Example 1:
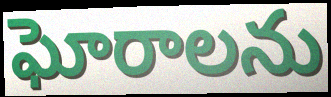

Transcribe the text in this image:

ఘోరాలను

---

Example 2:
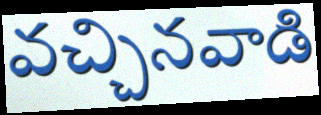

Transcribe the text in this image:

వచ్చినవాడి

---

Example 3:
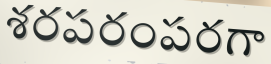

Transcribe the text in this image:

శరపరంపరగా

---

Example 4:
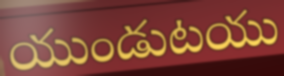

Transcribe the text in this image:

యుండుటయు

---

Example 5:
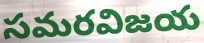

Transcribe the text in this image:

సమరవిజయ